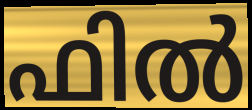
ഫിൽ